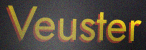
Veuster